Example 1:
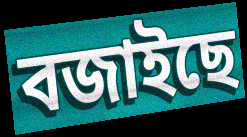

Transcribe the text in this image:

বজাইছে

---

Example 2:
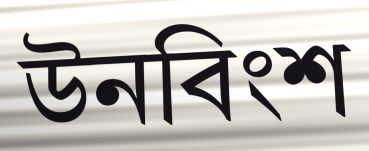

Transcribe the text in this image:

উনবিংশ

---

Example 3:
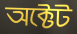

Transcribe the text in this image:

অক্টেট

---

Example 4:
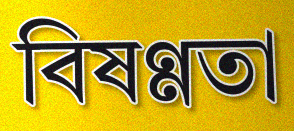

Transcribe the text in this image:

বিষণ্ণতা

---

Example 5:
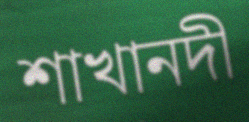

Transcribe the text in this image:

শাখানদী